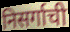
निसर्गाची